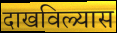
दाखविल्यास